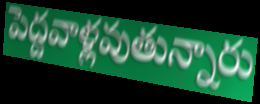
పెద్దవాళ్లవుతున్నారు